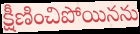
క్షీణించిపోయినను